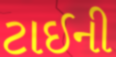
ટાઈની